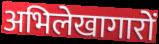
अभिलेखागारों